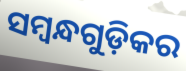
ସମ୍ବନ୍ଧଗୁଡ଼ିକର